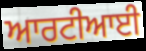
ਆਰਟੀਆਈ